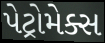
પેટ્રોમેક્સ